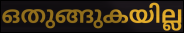
ഒതുങ്ങുകയില്ല